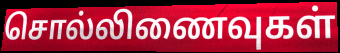
சொல்லிணைவுகள்